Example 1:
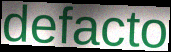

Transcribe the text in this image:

defacto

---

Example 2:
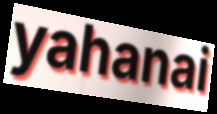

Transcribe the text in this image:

yahanai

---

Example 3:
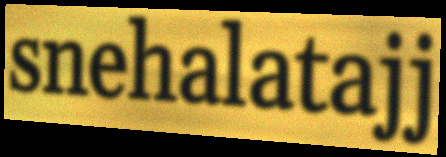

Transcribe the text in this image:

snehalatajj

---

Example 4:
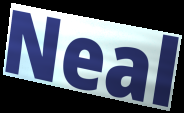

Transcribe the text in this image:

Neal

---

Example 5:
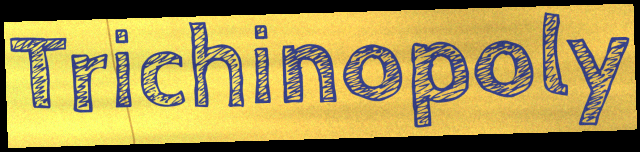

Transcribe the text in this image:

Trichinopoly